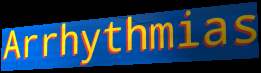
Arrhythmias